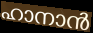
ഹാനാൻ